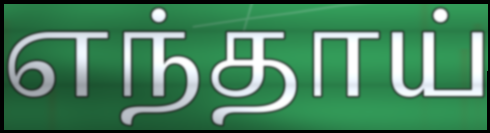
எந்தாய்